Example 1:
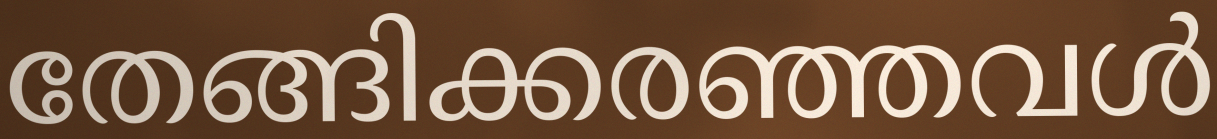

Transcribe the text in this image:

തേങ്ങിക്കരഞ്ഞവൾ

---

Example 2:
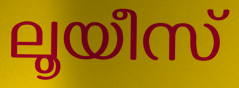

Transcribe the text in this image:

ലൂയീസ്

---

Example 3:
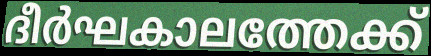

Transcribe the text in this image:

ദീർഘകാലത്തേക്ക്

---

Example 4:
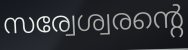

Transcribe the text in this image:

സര്വേശ്വരന്റെ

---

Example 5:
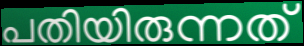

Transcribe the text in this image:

പതിയിരുന്നത്